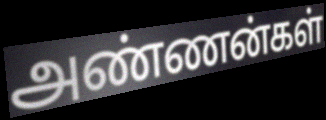
அண்ணன்கள்